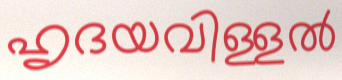
ഹൃദയവിള്ളൽ